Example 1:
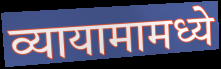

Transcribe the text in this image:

व्यायामामध्ये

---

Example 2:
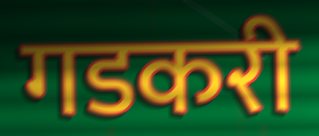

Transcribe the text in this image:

गडकरी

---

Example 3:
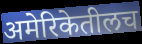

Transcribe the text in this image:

अमेरिकेतीलच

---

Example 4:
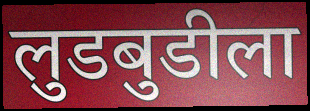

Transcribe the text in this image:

लुडबुडीला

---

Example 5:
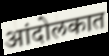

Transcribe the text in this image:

आंदोलकात